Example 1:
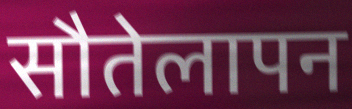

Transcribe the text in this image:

सौतेलापन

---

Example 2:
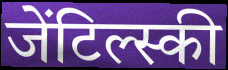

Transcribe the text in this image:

जेंटिल्स्की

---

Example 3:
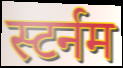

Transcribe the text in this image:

स्टर्नम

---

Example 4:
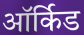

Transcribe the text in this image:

ऑर्किड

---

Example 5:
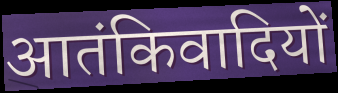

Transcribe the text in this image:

आतंकिवादियों